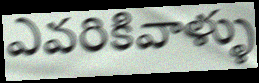
ఎవరికివాళ్ళు